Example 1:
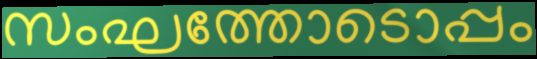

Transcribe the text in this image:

സംഘത്തോടൊപ്പം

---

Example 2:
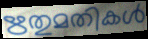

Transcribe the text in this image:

ഋതുമതികൾ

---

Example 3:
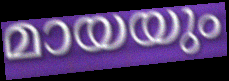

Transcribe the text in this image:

മായയും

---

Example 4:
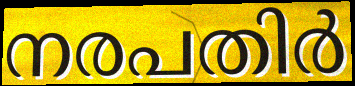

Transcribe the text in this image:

നരപതിർ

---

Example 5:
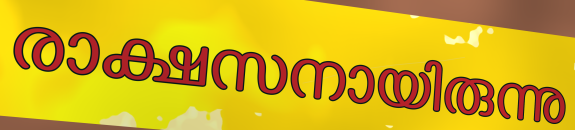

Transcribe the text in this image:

രാക്ഷസനായിരുന്നു